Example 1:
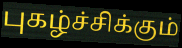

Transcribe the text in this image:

புகழ்ச்சிக்கும்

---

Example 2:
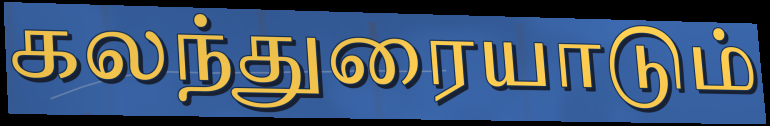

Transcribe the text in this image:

கலந்துரையாடும்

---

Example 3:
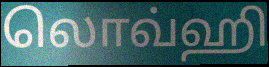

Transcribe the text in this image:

லொவ்ஹி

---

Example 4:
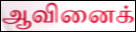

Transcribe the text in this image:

ஆவினைக்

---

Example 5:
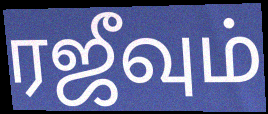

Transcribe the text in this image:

ரஜீவும்